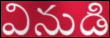
వినుడి